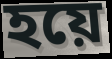
হয়ে